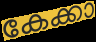
കേക്കാ